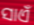
ସାଏଁ